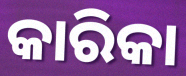
କାରିକା